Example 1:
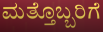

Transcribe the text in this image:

ಮತ್ತೊಬ್ಬರಿಗೆ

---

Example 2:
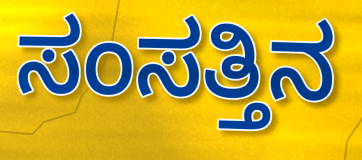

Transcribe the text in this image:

ಸಂಸತ್ತಿನ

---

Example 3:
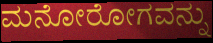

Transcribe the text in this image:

ಮನೋರೋಗವನ್ನು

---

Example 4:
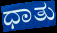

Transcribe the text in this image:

ಧಾತು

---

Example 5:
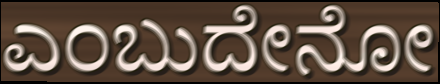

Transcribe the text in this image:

ಎಂಬುದೇನೋ